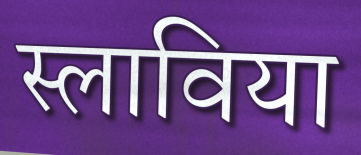
स्लाविया